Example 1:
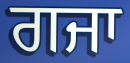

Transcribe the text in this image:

ਗਜਾ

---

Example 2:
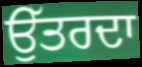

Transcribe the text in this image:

ਉੱਤਰਦਾ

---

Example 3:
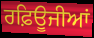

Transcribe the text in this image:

ਰਫ਼ਿਊਜੀਆਂ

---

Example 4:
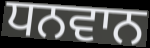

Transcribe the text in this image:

ਧਨਵਾਨ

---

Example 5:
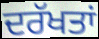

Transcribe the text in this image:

ਦਰੱਖਤਾਂ